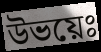
উভয়েঃ